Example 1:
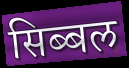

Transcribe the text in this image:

सिब्बल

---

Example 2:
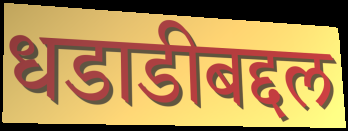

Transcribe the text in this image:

धडाडीबद्दल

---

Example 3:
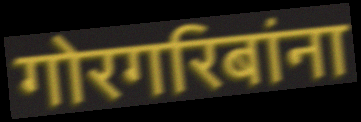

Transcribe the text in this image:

गोरगरिबांना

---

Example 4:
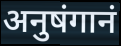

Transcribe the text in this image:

अनुषंगानं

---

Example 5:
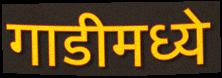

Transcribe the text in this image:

गाडीमध्ये